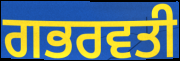
ਗਭਰਵਤੀ